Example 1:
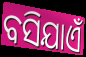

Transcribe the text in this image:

ବସିଯାଏଁ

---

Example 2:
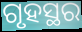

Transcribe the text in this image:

ଗୃହସ୍ଥର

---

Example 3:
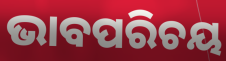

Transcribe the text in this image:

ଭାବପରିଚୟ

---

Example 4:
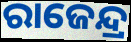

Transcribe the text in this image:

ରାଜେନ୍ଦ୍ର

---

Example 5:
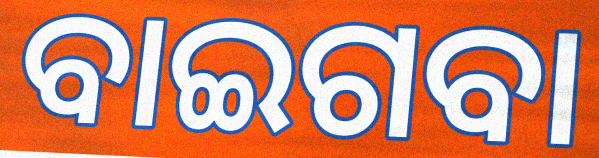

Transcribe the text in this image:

ବାଇଗବା